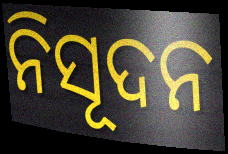
ନିସୂଦନ